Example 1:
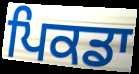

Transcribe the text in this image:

ਪਿਕਡਾ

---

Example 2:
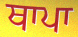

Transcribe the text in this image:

ਥਾਪਾ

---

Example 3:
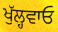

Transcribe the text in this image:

ਖੁੱਲ੍ਹਵਾਓ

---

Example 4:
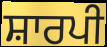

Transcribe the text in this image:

ਸ਼ਾਰਪੀ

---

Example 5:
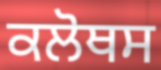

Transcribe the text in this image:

ਕਲੋਥਸ